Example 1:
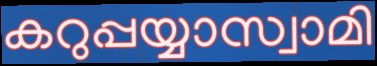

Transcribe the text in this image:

കറുപ്പയ്യാസ്വാമി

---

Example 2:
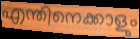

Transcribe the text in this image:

എന്തിനെക്കാളും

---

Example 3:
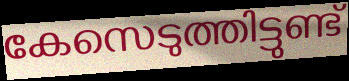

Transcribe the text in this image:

കേസെടുത്തിട്ടുണ്ട്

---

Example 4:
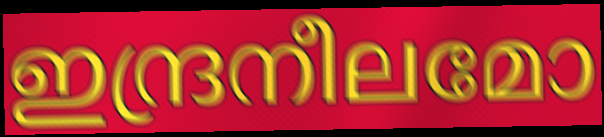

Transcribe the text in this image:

ഇന്ദ്രനീലമോ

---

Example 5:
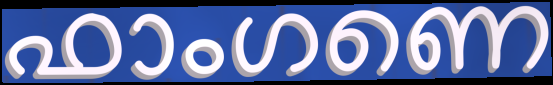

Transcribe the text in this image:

ഫാംഗണെ